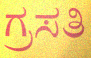
ಗ್ರಸತಿ